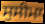
ਸੁਸੀਮਾ